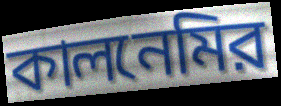
কালনেমির